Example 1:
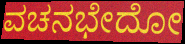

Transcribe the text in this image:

ವಚನಭೇದೋ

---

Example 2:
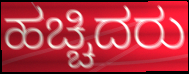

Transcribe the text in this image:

ಹಚ್ಚಿದರು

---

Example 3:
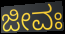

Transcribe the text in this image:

ಜೀವಃ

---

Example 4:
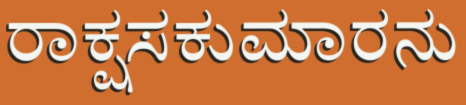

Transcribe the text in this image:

ರಾಕ್ಷಸಕುಮಾರನು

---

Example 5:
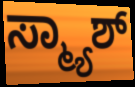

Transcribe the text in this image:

ಸ್ಮ್ಯಾಶ್